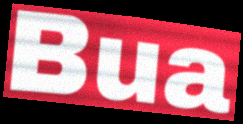
Bua